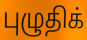
புழுதிக்